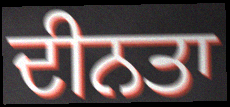
ਦੀਨਤਾ